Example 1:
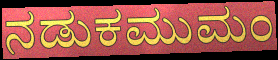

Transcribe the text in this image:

ನಡುಕಮುಮಂ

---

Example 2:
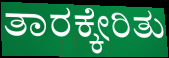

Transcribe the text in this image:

ತಾರಕ್ಕೇರಿತು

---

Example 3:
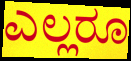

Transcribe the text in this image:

ಎಲ್ಲರೂ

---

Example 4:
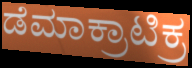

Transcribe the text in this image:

ಡೆಮಾಕ್ರಾಟಿಕ್ರ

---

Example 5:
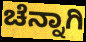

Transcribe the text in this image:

ಚೆನ್ನಾಗಿ